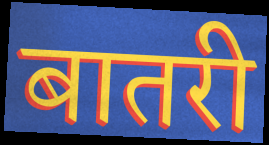
बातरी